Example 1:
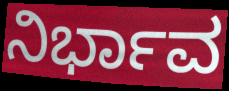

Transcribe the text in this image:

ನಿರ್ಭಾವ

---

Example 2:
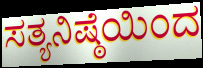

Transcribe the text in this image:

ಸತ್ಯನಿಷ್ಠೆಯಿಂದ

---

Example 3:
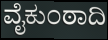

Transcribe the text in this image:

ವೈಕುಂಠಾದಿ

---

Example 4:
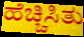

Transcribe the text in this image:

ಹೆಚ್ಚಿಸಿತು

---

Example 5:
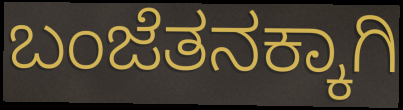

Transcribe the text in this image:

ಬಂಜೆತನಕ್ಕಾಗಿ